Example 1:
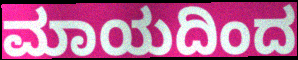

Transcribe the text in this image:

ಮಾಯದಿಂದ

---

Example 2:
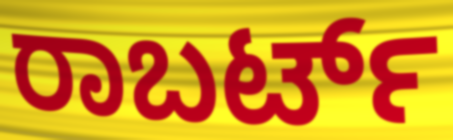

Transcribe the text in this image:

ರಾಬರ್ಟ್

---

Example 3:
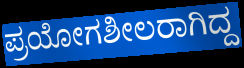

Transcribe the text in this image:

ಪ್ರಯೋಗಶೀಲರಾಗಿದ್ದ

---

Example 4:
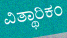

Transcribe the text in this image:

ವಿತ್ಥಾರಿಕಂ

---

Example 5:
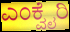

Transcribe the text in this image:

ಎಂಕ್ವೈರಿ